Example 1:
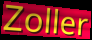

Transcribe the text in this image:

Zoller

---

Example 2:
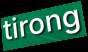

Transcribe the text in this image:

tirong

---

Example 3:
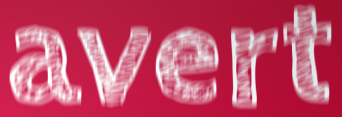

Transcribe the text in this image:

avert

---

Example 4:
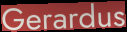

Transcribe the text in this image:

Gerardus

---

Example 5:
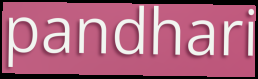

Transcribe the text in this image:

pandhari